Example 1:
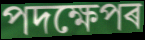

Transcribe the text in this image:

পদক্ষেপৰ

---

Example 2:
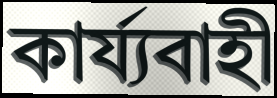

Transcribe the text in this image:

কাৰ্য্যবাহী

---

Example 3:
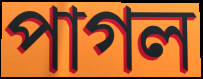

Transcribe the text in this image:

পাগল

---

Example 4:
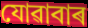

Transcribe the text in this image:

যোৱাবাৰ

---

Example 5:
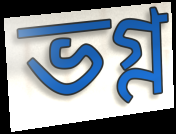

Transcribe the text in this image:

ভগ্ন